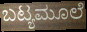
ಬಟ್ಯಮೂಲೆ